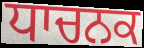
ਧਾਚਨਕ